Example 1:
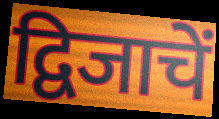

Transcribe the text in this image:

द्विजाचें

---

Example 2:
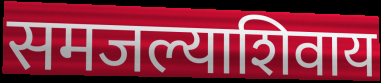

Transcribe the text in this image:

समजल्याशिवाय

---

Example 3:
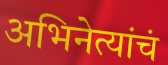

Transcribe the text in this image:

अभिनेत्यांचं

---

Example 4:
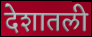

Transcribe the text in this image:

देशातली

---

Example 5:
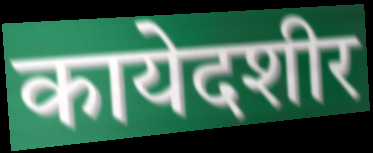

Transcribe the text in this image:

कायेदशीर